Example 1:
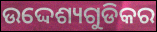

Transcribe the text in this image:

ଉଦ୍ଦେଶ୍ୟଗୁଡିକର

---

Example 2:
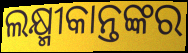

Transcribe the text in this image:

ଲକ୍ଷ୍ମୀକାନ୍ତଙ୍କର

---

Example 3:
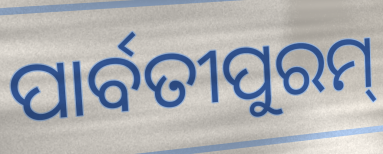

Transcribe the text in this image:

ପାର୍ବତୀପୁରମ୍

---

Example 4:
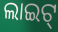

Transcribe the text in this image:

ଲାଇଟ୍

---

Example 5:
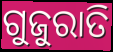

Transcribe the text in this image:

ଗୁଜୁରାତି